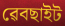
ৱেবছাইট